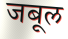
जबूल